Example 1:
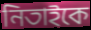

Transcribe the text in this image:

নিতাইকে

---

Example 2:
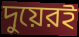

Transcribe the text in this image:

দুয়েরই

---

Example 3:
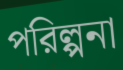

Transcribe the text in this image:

পরিল্পনা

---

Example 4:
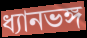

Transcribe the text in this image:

ধ্যানভঙ্গ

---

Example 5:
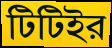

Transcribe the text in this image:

টিটিইর